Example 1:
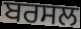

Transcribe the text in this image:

ਬਰਸਲ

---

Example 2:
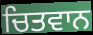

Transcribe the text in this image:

ਚਿਤਵਾਨ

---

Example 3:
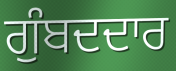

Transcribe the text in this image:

ਗੁੰਬਦਦਾਰ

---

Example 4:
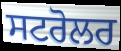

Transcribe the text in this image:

ਸਟਰੋਲਰ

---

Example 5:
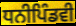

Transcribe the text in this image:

ਧਨੀਪਿੰਡਵੀ